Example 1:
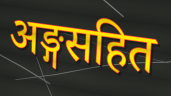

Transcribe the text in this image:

अङ्गसहित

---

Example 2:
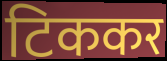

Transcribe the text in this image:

टिककर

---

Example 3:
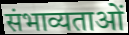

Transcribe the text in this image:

संभाव्यताओं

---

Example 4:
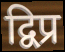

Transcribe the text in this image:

द्विप्र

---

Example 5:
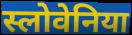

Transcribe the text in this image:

स्लोवेनिया